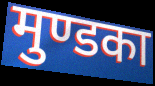
मुण्डका